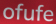
ofufe